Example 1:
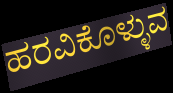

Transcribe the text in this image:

ಹರವಿಕೊಳ್ಳುವ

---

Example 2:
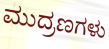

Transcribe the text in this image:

ಮುದ್ರಣಗಳು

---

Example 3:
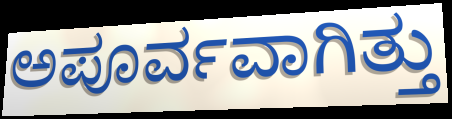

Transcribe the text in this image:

ಅಪೂರ್ವವಾಗಿತ್ತು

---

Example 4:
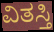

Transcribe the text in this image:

ವಿತಸ್ತಿ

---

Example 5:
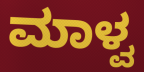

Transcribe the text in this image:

ಮಾಳ್ವ